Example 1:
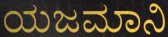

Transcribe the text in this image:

ಯಜಮಾನಿ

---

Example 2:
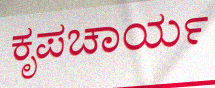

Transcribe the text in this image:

ಕೃಪಚಾರ್ಯ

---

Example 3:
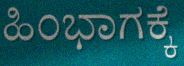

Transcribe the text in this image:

ಹಿಂಭಾಗಕ್ಕೆ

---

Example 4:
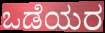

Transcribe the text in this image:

ಒಡೆಯರ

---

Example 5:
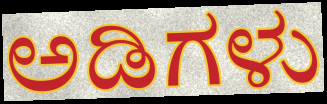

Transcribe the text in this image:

ಅಡಿಗಳು